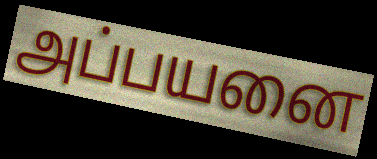
அப்பயனை